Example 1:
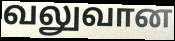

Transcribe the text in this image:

வலுவான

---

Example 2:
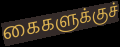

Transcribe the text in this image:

கைகளுக்குச்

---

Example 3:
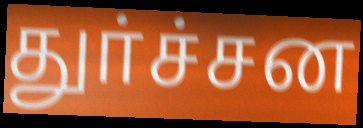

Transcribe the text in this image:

துர்ச்சன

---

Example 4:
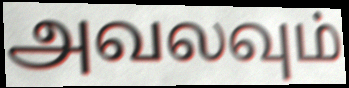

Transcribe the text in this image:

அவலவும்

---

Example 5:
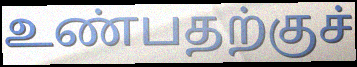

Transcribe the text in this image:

உண்பதற்குச்